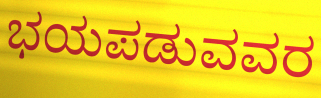
ಭಯಪಡುವವರ